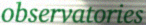
observatories